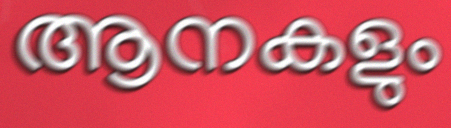
ആനകളും